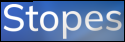
Stopes